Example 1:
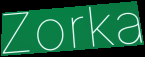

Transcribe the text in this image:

Zorka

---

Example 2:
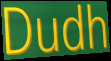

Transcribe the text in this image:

Dudh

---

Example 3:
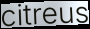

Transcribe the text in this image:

citreus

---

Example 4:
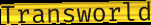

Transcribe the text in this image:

Transworld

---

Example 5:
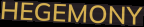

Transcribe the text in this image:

HEGEMONY